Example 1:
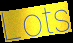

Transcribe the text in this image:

Lots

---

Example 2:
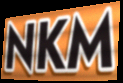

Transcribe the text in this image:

NKM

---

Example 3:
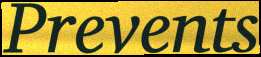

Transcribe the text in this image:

Prevents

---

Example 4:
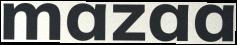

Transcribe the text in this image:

mazaa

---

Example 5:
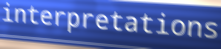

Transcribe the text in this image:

interpretations